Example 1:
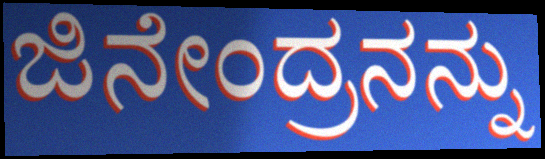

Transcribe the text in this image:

ಜಿನೇಂದ್ರನನ್ನು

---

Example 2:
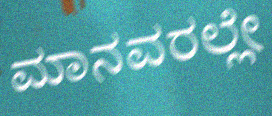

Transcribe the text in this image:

ಮಾನವರಲ್ಲೇ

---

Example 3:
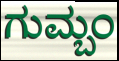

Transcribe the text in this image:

ಗುಮ್ಬಂ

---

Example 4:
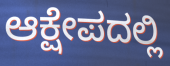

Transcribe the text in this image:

ಆಕ್ಷೇಪದಲ್ಲಿ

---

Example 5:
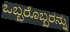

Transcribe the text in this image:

ಒಬ್ಬರೊಬ್ಬರನ್ನು